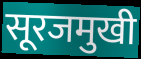
सूरजमुखी